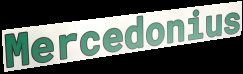
Mercedonius